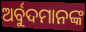
ଅର୍ବୁଦମାନଙ୍କ